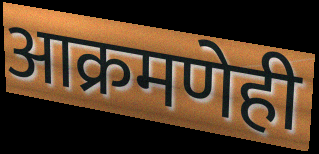
आक्रमणेही